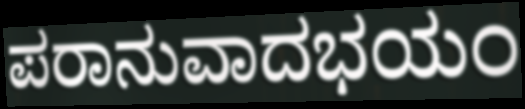
ಪರಾನುವಾದಭಯಂ